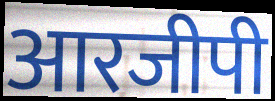
आरजीपी